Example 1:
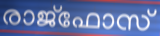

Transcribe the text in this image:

രാജ്ഫോസ്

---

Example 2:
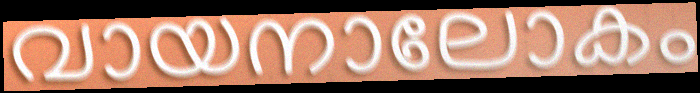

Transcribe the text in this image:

വായനാലോകം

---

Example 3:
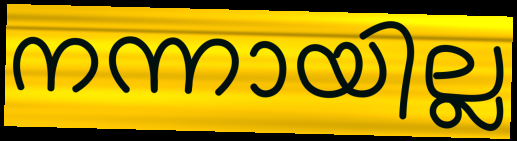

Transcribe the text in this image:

നന്നായില്ല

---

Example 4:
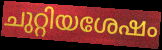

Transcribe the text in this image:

ചുറ്റിയശേഷം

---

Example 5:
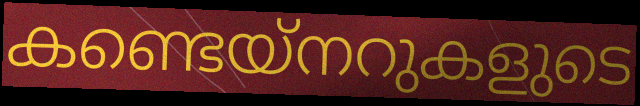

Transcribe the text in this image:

കണ്ടെയ്നറുകളുടെ